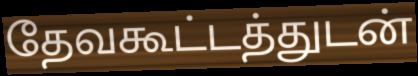
தேவகூட்டத்துடன்